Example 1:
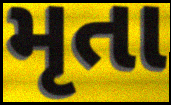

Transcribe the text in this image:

મૃતા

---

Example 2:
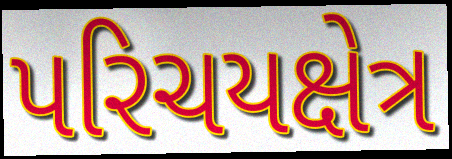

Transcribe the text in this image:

પરિચયક્ષેત્ર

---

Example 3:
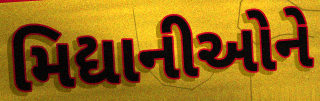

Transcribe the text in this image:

મિદ્યાનીઓને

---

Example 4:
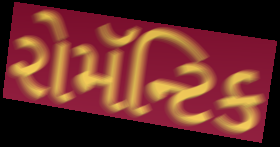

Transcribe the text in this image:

રોમૅન્ટિક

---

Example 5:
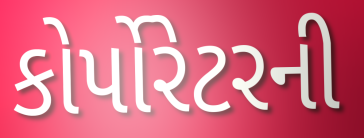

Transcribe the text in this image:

કોર્પોરેટરની